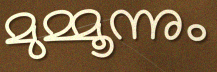
മുമ്മൂന്നും